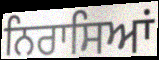
ਨਿਰਾਸਿਆਂ